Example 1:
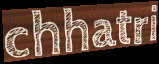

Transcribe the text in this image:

chhatri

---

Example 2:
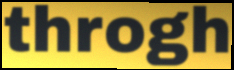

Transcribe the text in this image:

throgh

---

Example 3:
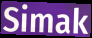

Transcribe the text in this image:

Simak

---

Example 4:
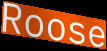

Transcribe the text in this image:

Roose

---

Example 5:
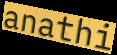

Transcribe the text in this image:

anathi